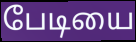
பேடியை